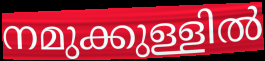
നമുക്കുള്ളിൽ